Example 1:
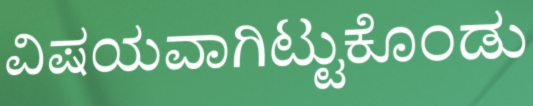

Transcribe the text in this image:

ವಿಷಯವಾಗಿಟ್ಟುಕೊಂಡು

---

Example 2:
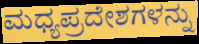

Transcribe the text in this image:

ಮಧ್ಯಪ್ರದೇಶಗಳನ್ನು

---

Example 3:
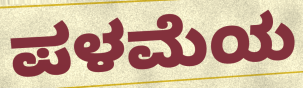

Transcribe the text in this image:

ಪಳಮೆಯ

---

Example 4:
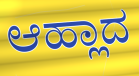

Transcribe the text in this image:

ಆಹ್ಲಾದ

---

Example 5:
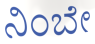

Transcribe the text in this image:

ನಿಂಬೇ